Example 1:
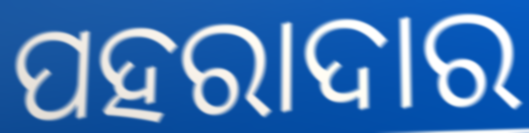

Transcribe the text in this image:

ପହରାଦାର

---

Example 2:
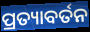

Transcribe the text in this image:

ପ୍ରତ୍ୟାବର୍ତନ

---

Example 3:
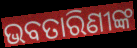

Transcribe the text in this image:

ଭବତାରିଣୀଙ୍କ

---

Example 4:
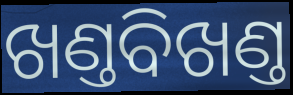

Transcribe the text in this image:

ଖଣ୍ତବିଖଣ୍ତ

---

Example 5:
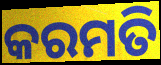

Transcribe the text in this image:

କରମତି